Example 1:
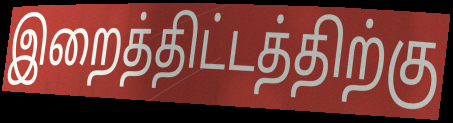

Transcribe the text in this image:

இறைத்திட்டத்திற்கு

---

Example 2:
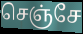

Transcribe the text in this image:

செஞ்சே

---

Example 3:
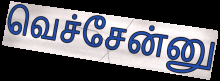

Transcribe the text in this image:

வெச்சேன்னு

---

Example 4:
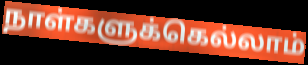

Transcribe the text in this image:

நாள்களுக்கெல்லாம்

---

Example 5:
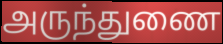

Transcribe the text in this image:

அருந்துணை